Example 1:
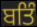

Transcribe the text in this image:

ਬਤਿੰ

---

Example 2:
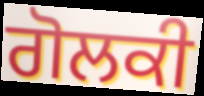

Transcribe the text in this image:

ਗੋਲਕੀ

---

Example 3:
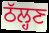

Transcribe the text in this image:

ਠੱਲ੍ਹਣ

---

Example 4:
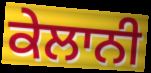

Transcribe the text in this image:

ਕੇਲਾਨੀ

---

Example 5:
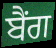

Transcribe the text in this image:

ਬੈਂਗ